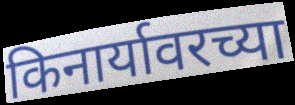
किनार्यावरच्या